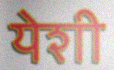
येशी